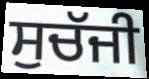
ਸੁਚੱਜੀ